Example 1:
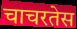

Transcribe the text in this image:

चाचरतेस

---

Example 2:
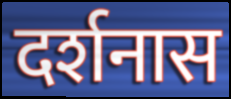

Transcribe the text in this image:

दर्शनास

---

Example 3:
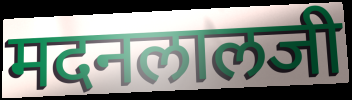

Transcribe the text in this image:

मदनलालजी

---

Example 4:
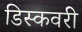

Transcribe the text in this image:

डिस्कवरी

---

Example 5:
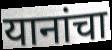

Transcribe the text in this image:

यानांचा